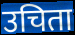
उचिता